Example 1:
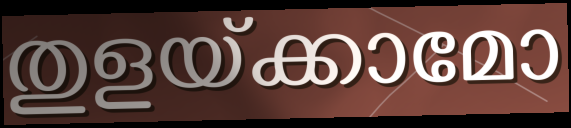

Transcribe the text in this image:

തുളയ്‌ക്കാമോ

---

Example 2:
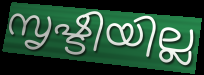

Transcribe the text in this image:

സൃഷ്ടിയില്ല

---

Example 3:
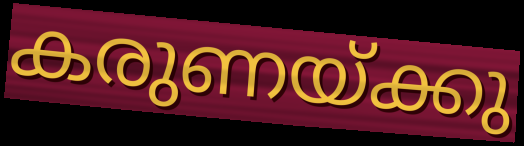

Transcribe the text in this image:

കരുണയ്ക്കു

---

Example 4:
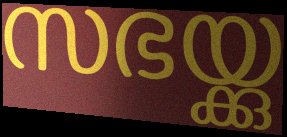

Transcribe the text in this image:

സഭയ്ക്കു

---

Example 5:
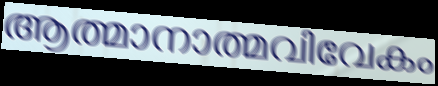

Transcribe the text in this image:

ആത്മാനാത്മവിവേകം